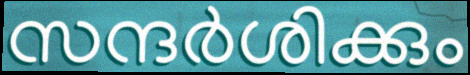
സന്ദർശിക്കും